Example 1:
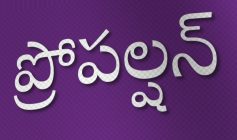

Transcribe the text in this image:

ప్రోపల్షన్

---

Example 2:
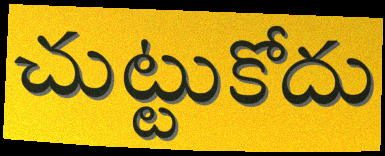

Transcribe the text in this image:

చుట్టుకోదు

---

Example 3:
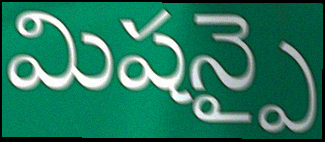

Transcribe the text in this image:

మిషన్పై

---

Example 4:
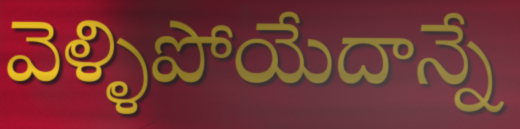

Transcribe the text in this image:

వెళ్ళిపోయేదాన్నే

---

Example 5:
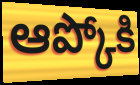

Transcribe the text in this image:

ఆప్కోకి